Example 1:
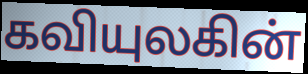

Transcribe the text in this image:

கவியுலகின்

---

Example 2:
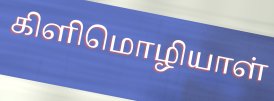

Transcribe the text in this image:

கிளிமொழியாள்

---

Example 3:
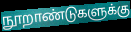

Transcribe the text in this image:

நூறாண்டுகளுக்கு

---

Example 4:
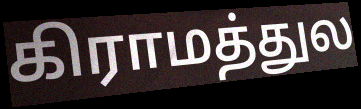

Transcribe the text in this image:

கிராமத்துல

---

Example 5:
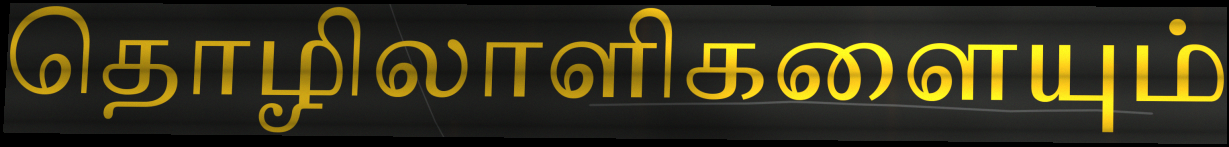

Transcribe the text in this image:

தொழிலாளிகளையும்